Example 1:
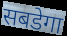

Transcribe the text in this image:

सबडेगा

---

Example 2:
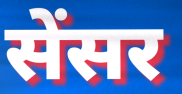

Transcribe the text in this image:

सेंसर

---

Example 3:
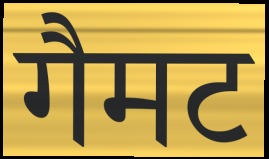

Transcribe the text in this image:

गैमट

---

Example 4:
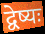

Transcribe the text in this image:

द्वेष्यः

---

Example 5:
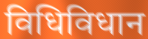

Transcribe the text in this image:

विधिविधान